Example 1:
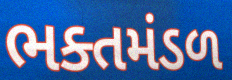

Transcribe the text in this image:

ભક્તમંડળ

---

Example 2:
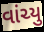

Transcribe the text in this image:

વાંચ્યુ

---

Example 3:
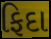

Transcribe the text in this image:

ફિદા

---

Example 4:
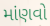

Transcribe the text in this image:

માંણવો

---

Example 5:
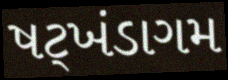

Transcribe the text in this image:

ષટ્ખંડાગમ